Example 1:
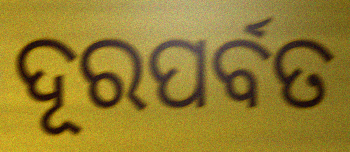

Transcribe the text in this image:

ଦୂରପର୍ବତ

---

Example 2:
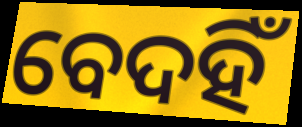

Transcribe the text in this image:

ବେଦହିଁ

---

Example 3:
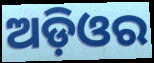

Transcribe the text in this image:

ଅଡ଼ିଓର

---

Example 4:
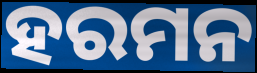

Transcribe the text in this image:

ହରମନ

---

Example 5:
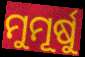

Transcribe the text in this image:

ମୁମୂର୍ଷୁ